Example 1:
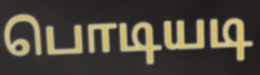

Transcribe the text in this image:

பொடியடி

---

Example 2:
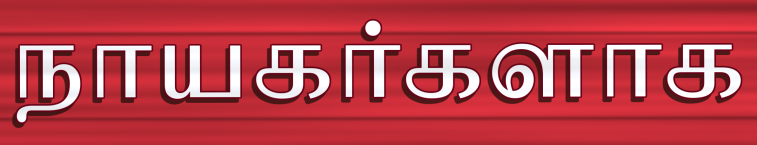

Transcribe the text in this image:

நாயகர்களாக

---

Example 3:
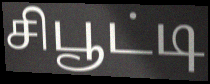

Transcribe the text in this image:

சிபூட்டி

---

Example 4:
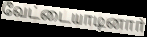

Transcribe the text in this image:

வேட்டையாடினார்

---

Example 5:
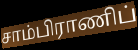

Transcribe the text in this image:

சாம்பிராணிப்